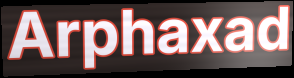
Arphaxad